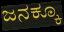
ಜನಕ್ಕೂ